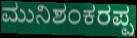
ಮುನಿಶಂಕರಪ್ಪ